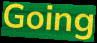
Going